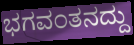
ಭಗವಂತನದ್ದು